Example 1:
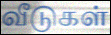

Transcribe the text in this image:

வீடுகள்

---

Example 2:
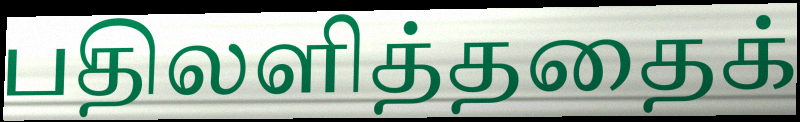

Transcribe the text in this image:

பதிலளித்ததைக்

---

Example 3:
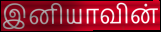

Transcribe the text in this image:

இனியாவின்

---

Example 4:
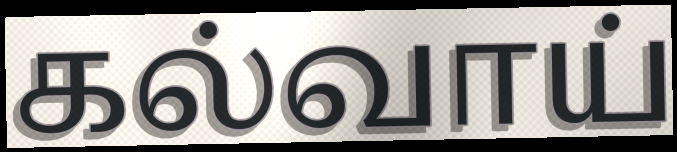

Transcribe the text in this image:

கல்வாய்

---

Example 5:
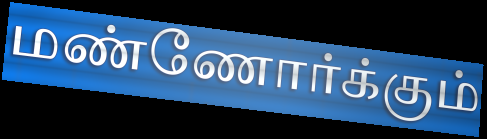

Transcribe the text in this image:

மண்ணோர்க்கும்